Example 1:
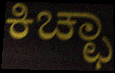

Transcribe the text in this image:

ಕಿಚ್ಛಾ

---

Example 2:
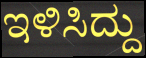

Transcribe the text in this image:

ಇಳಿಸಿದ್ದು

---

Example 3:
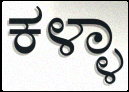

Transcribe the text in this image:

ಕಳ್ಳಾ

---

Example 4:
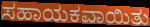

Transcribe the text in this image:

ಸಹಾಯಕವಾಯಿತು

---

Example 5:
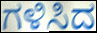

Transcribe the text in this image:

ಗಳಿಸಿದ